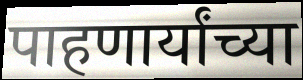
पाहणार्यांच्या